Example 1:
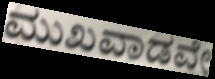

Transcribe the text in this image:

ಮುಖವಾಡವೇ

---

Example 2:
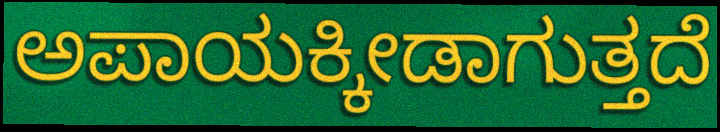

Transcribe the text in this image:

ಅಪಾಯಕ್ಕೀಡಾಗುತ್ತದೆ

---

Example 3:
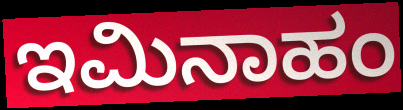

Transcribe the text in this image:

ಇಮಿನಾಹಂ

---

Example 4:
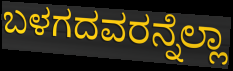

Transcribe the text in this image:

ಬಳಗದವರನ್ನೆಲ್ಲಾ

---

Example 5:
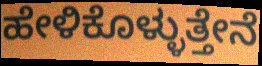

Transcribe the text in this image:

ಹೇಳಿಕೊಳ್ಳುತ್ತೇನೆ